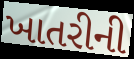
ખાતરીની